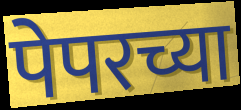
पेपरच्या